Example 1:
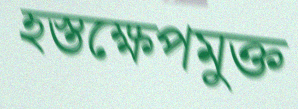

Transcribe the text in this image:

হস্তক্ষেপমুক্ত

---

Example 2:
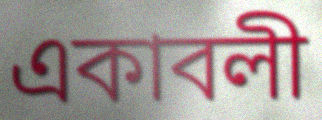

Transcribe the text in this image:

একাবলী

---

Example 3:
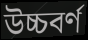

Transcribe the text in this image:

উচ্চবর্ণ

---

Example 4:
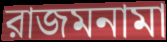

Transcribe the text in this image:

রাজমনামা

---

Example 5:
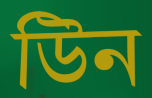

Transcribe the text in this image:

উিন